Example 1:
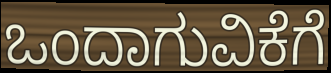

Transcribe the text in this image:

ಒಂದಾಗುವಿಕೆಗೆ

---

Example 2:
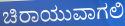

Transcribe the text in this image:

ಚಿರಾಯುವಾಗಲಿ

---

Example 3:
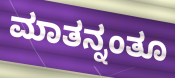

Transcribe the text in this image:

ಮಾತನ್ನಂತೂ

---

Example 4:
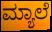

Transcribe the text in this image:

ಮ್ಯಾಲೆ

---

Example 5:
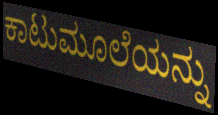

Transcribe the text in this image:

ಕಾಟುಮೂಲೆಯನ್ನು